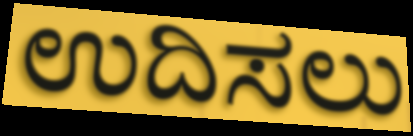
ಉದಿಸಲು